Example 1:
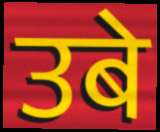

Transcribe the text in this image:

उबे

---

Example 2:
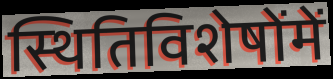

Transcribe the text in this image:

स्थितिविशेषोंमें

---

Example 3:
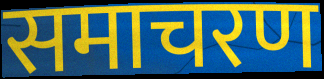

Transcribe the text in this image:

समाचरण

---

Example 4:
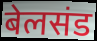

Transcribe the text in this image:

बेलसंड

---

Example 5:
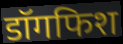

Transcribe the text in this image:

डॉगफिश